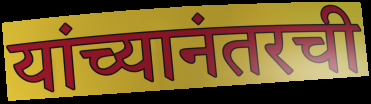
यांच्यानंतरची